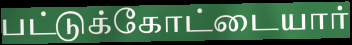
பட்டுக்கோட்டையார்